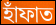
হাঁফাত